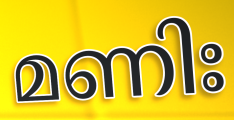
മണിഃ